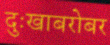
दुःखाबरोबर